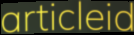
articleid